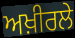
ਅਖ਼ੀਰਲੇ